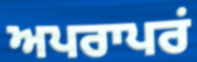
ਅਪਰਾਪਰਂ